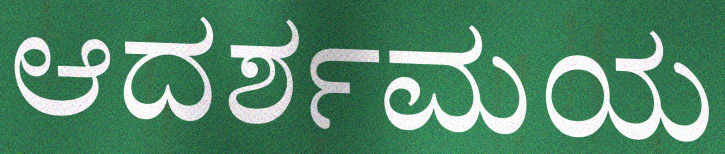
ಆದರ್ಶಮಯ